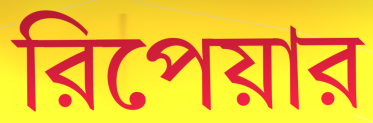
রিপেয়ার